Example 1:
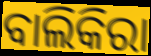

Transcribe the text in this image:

ବାଲିକିରା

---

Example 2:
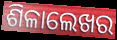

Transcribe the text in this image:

ଶିଳାଲେଖର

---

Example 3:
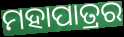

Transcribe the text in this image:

ମହାପାତ୍ରର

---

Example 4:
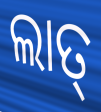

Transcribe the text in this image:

ଲାତ୍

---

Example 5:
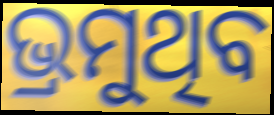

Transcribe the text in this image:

ଭ୍ରମୁଥିବ